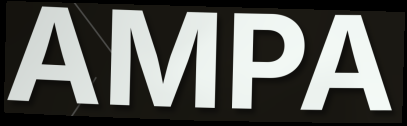
AMPA